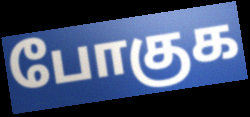
போகுக